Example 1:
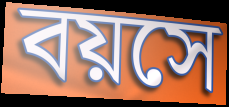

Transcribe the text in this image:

বয়সে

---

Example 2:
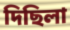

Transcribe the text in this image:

দিছিলা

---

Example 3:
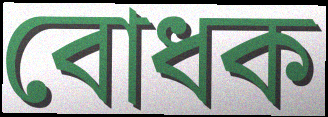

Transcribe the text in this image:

বোধক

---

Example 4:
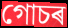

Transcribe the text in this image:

গোচৰ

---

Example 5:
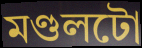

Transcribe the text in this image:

মণ্ডলটো